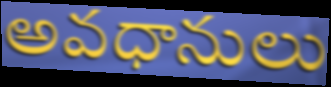
అవధానులు